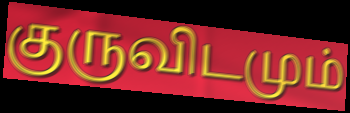
குருவிடமும்